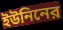
ইউনিনের